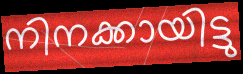
നിനക്കായിട്ടു